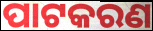
ପାଟକରଣ